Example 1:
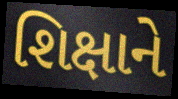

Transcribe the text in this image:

શિક્ષાને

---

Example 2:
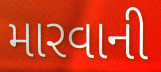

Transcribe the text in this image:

મારવાની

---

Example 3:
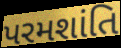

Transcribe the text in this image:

પરમશાંતિ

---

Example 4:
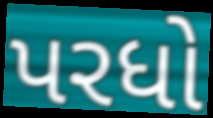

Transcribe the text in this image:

પરધો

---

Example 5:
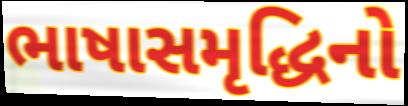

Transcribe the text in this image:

ભાષાસમૃદ્ધિનો